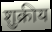
शुक्रीय